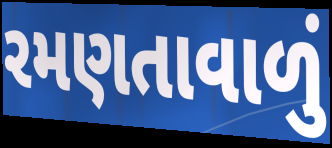
રમણતાવાળું